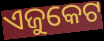
ଏଜୁକେଟ